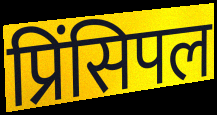
प्रिंसिपल